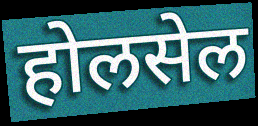
होलसेल